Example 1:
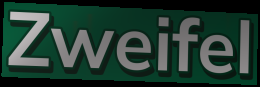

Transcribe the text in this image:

Zweifel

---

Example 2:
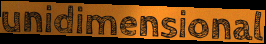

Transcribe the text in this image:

unidimensional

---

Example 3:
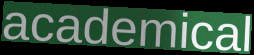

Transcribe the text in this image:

academical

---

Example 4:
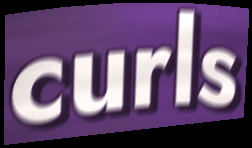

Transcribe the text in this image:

curls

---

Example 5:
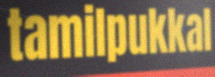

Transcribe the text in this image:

tamilpukkal